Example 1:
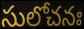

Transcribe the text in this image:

సులోచనః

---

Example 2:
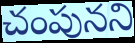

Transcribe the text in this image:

చంపునని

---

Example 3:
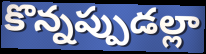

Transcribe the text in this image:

కొన్నప్పుడల్లా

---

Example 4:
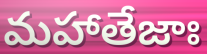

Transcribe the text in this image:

మహాతేజాః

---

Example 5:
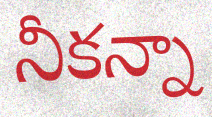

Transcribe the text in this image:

నీకన్నా